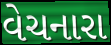
વેચનારા